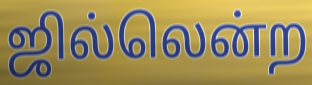
ஜில்லென்ற